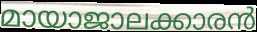
മായാജാലക്കാരൻ